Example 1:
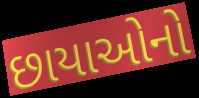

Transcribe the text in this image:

છાયાઓનો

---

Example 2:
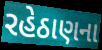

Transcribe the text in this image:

રહેઠાણના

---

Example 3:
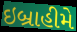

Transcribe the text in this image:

ઇબ્રાહીમે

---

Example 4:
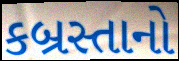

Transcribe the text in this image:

કબ્રસ્તાનો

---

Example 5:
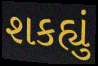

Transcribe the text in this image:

શકહ્યું